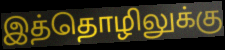
இத்தொழிலுக்கு